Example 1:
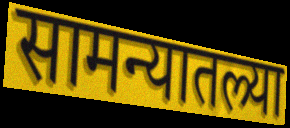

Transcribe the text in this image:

सामन्यातल्या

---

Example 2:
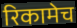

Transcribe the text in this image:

रिकामेच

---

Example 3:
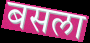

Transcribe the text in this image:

बसला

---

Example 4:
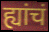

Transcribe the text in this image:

ह्यांचं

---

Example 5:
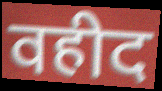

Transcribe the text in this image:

वहीद